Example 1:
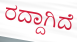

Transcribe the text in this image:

ರದ್ದಾಗಿದೆ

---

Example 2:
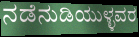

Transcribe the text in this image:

ನಡೆನುಡಿಯುಳ್ಳವರ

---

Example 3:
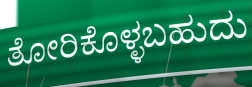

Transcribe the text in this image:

ತೋರಿಕೊಳ್ಳಬಹುದು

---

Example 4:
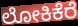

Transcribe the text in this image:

ಲೋಕಿಕೆರೆ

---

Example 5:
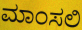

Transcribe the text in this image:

ಮಾಂಸಲಿ